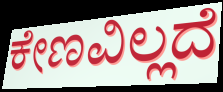
ಕೇಣವಿಲ್ಲದೆ